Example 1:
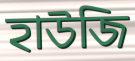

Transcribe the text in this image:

হাউজি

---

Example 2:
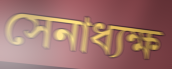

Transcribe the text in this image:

সেনাধ্যক্ষ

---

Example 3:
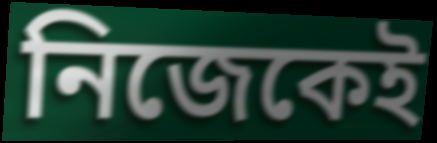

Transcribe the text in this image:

নিজেকেই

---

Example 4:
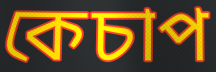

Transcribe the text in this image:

কেচাপ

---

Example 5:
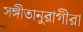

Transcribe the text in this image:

সঙ্গীতানুরাগীরা